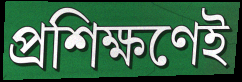
প্রশিক্ষণেই